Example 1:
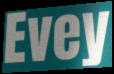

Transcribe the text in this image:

Evey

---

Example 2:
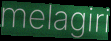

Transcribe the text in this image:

melagiri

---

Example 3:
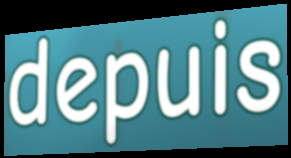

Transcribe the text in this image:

depuis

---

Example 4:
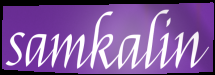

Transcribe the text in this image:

samkalin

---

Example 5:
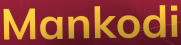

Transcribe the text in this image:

Mankodi